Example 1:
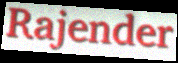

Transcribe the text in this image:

Rajender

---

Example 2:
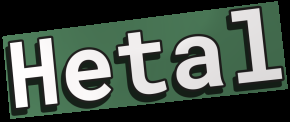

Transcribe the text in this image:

Hetal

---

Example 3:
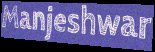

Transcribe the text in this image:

Manjeshwar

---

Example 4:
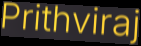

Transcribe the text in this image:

Prithviraj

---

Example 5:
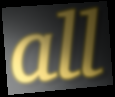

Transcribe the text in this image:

all